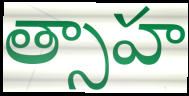
త్సాహ